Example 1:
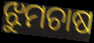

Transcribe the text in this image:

ଝୁମଚାଷ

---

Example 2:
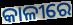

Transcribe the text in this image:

କାଳୀରେ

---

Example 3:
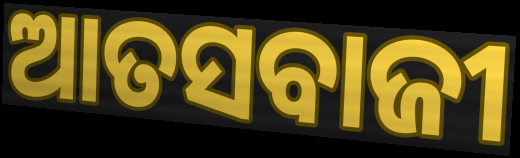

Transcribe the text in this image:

ଆତସବାଜୀ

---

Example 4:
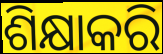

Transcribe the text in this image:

ଶିକ୍ଷାକରି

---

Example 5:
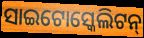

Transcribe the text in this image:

ସାଇଟୋସ୍କେଲିଟନ୍